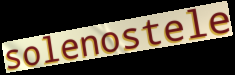
solenostele